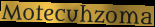
Motecuhzoma